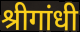
श्रीगांधी